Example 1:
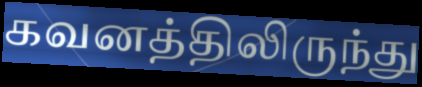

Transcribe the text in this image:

கவனத்திலிருந்து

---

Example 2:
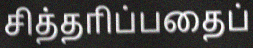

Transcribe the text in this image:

சித்தரிப்பதைப்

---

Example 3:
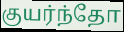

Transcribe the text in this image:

குயர்ந்தோ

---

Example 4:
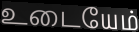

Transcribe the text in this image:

உடையேம்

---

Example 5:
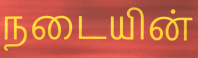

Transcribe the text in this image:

நடையின்